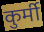
कुर्मी